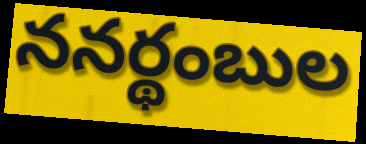
ననర్థంబుల